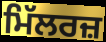
ਮਿੱਲਰਜ਼